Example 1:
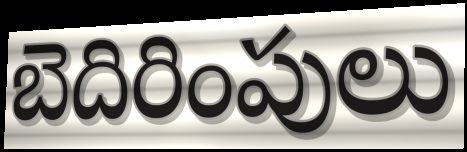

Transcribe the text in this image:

బెదిరింపులు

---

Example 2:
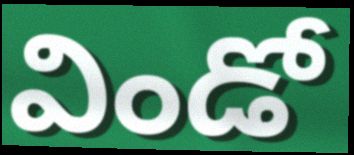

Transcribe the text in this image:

విండో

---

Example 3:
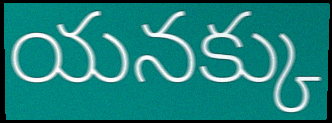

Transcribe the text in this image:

యనక్కు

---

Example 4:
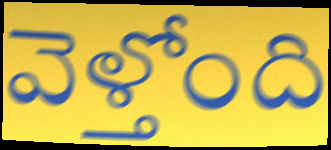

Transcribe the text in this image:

వెళ్తోంది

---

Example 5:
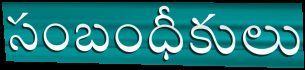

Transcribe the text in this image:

సంబంధీకులు